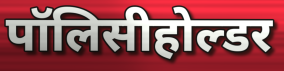
पॉलिसीहोल्डर